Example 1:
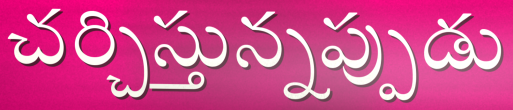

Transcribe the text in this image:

చర్చిస్తున్నప్పుడు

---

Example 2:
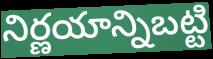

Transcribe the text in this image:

నిర్ణయాన్నిబట్టి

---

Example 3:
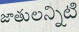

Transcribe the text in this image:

జాతులన్నిటి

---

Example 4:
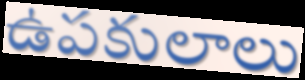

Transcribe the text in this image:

ఉపకులాలు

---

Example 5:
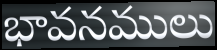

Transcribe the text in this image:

భావనములు